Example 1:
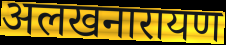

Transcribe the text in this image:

अलखनारायण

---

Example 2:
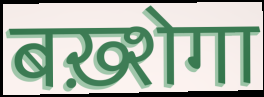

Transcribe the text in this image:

बख़्शेगा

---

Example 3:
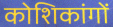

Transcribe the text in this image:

कोशिकांगों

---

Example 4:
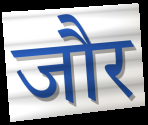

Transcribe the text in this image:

जौर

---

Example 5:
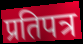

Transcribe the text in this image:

प्रतिपत्र